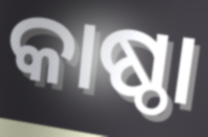
କାଷ୍ଠା